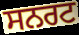
ਸਨਰਟ